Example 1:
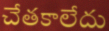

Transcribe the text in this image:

చేతకాలేదు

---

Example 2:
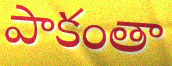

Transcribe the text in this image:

పాకంతా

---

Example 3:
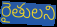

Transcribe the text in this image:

రైతులని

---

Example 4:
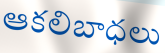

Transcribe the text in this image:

ఆకలిబాధలు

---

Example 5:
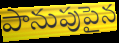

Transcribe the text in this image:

పానుపుపైన